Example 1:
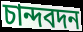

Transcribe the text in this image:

চান্দবদন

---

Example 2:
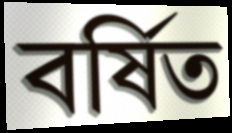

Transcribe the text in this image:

বর্ষিত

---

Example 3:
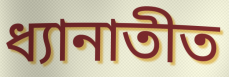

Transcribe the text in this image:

ধ্যানাতীত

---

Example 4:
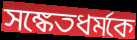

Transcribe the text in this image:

সঙ্কেতধর্মকে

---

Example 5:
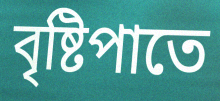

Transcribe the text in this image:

বৃষ্টিপাতে